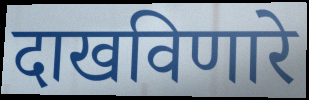
दाखविणारे